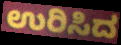
ಉರಿಸಿದ